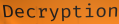
Decryption